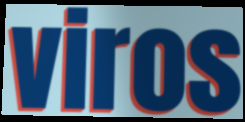
viros